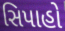
સિપાહો